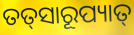
ତତ୍‌ସାରୂପ୍ୟାତ୍